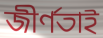
জীর্ণতাই